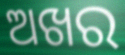
ଅଖର